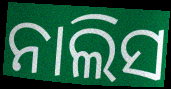
ନାଲିସ